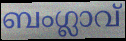
ബംഗ്ലാവ്